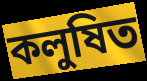
কলুষিত